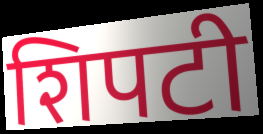
शिपटी